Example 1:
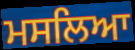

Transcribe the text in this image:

ਮਸਲਿਆ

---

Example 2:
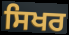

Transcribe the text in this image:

ਸਿਖਰ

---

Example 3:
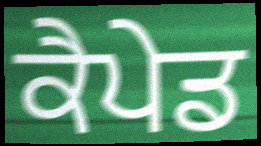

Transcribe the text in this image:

ਕੈਪੇਡ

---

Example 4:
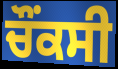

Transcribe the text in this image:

ਚੌਂਕਸੀ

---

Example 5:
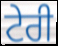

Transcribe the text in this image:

ਟੇਰੀ